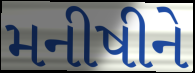
મનીષીને